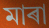
মাৰা